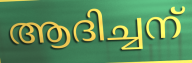
ആദിച്ചന്